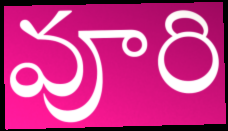
వూరి